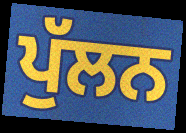
ਪੁੱਲਨ